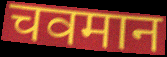
चवमान